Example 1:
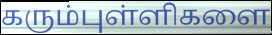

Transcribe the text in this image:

கரும்புள்ளிகளை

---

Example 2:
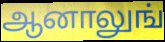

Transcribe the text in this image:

ஆனாலுங்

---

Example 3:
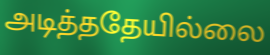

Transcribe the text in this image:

அடித்ததேயில்லை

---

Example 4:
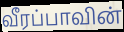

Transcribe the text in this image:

வீரப்பாவின்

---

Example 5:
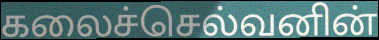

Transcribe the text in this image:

கலைச்செல்வனின்